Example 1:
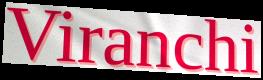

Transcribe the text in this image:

Viranchi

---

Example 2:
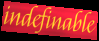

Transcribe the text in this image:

indefinable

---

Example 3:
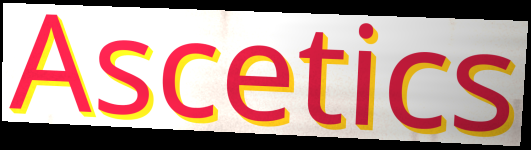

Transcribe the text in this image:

Ascetics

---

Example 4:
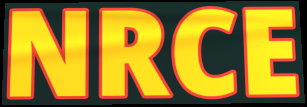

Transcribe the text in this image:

NRCE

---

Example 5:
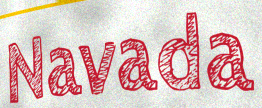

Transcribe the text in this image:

Navada